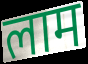
लाम